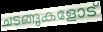
ചടങ്ങുകളോട്